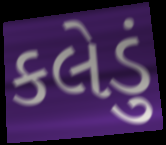
કલેડું